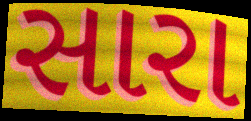
સારા